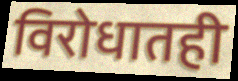
विरोधातही